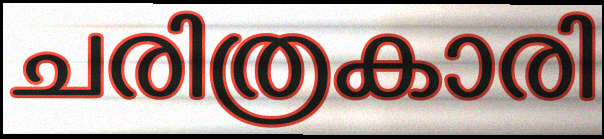
ചരിത്രകാരി